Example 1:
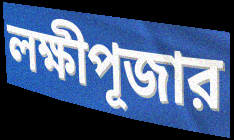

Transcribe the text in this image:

লক্ষীপূজার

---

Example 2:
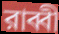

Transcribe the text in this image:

রাব্বী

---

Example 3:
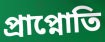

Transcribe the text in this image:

প্রাপ্নোতি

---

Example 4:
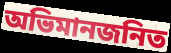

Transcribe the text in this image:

অভিমানজনিত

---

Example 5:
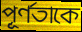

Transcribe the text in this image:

পূর্ণতাকে